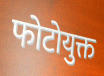
फोटोयुक्त